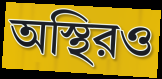
অস্থিরও